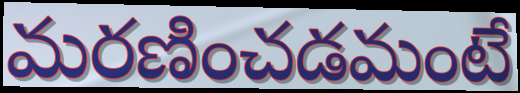
మరణించడమంటే